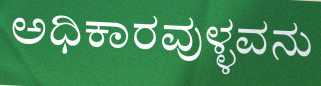
ಅಧಿಕಾರವುಳ್ಳವನು